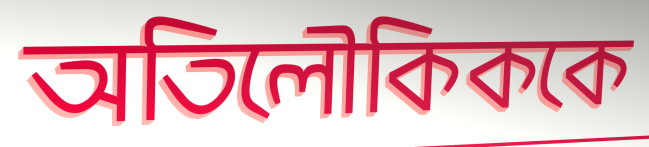
অতিলৌকিককে